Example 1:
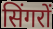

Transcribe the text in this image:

सिंगरों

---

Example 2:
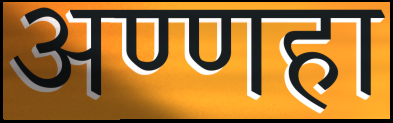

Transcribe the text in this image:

अण्णहा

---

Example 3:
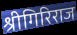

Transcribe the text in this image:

श्रीगिरिराज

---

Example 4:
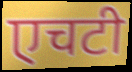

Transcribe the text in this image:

एचटी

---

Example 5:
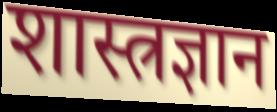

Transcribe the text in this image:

शास्त्रज्ञान